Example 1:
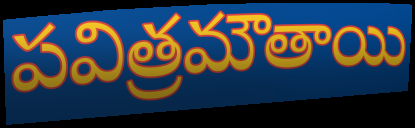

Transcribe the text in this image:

పవిత్రమౌతాయి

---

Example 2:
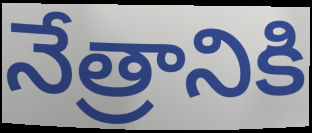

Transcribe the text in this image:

నేత్రానికి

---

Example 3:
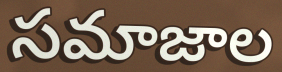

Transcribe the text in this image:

సమాజాల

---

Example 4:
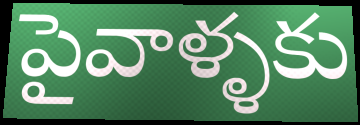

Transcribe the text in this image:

పైవాళ్ళకు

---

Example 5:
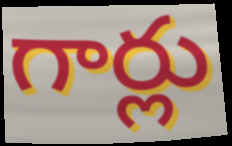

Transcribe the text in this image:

గార్లు